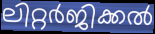
ലിറ്റർജിക്കൽ